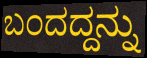
ಬಂದದ್ದನ್ನು